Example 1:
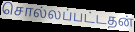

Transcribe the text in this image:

சொல்லப்பட்டதன்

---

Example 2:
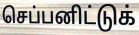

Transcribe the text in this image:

செப்பனிட்டுக்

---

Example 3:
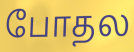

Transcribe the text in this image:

போதல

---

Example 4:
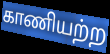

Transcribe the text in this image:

காணியற்ற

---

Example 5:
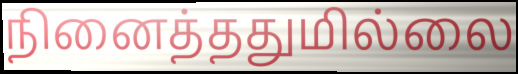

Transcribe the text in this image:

நினைத்ததுமில்லை